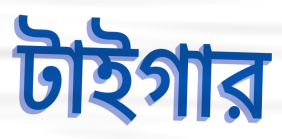
টাইগার